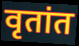
वृतांत